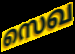
സെഖ